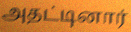
அதட்டினார்